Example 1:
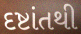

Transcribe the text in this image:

દષ્ટાંતથી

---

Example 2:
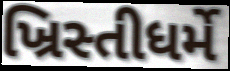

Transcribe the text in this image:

ખ્રિસ્તીધર્મે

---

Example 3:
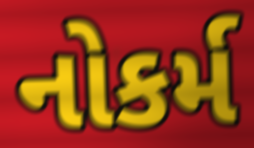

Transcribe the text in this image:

નોકર્મ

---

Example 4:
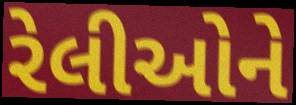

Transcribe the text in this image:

રેલીઓને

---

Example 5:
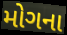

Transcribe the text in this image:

મોગના